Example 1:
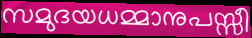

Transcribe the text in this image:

സമുദയധമ്മാനുപസ്സീ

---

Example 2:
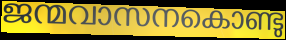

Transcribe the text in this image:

ജന്മവാസനകൊണ്ടു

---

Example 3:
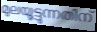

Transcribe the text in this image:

മുലയൂട്ടുന്നതിന്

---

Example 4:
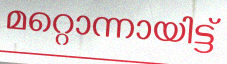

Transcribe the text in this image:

മറ്റൊന്നായിട്ട്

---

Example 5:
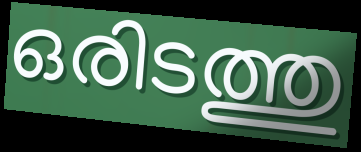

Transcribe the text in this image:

ഒരിടത്തു